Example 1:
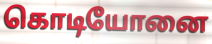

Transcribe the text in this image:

கொடியோனை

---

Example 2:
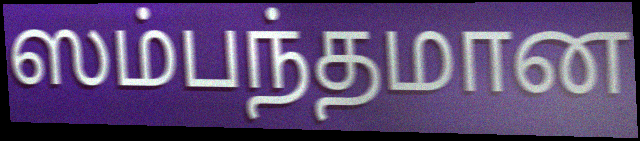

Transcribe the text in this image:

ஸம்பந்தமான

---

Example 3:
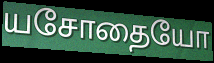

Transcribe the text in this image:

யசோதையோ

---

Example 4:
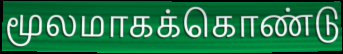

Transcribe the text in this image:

மூலமாகக்கொண்டு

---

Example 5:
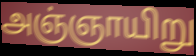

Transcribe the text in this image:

அஞ்ஞாயிறு